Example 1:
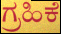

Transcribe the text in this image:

ಗ್ರಹಿಕೆ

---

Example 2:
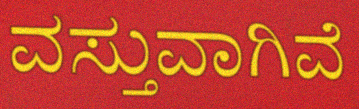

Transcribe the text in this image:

ವಸ್ತುವಾಗಿವೆ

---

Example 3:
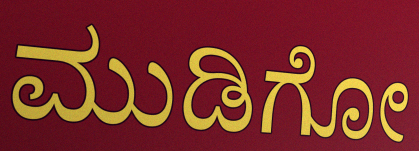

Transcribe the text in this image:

ಮುಡಿಗೋ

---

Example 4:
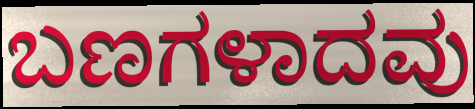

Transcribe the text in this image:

ಬಣಗಳಾದವು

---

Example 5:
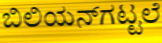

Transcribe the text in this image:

ಬಿಲಿಯನ್‌ಗಟ್ಟಲೆ